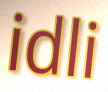
idli